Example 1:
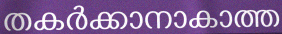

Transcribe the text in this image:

തകർക്കാനാകാത്ത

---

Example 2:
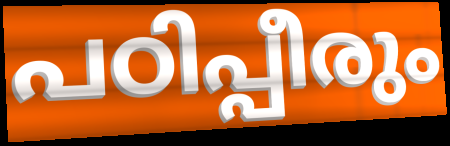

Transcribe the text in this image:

പഠിപ്പീരും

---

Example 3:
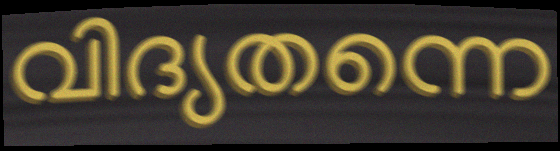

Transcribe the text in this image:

വിദ്യതന്നെ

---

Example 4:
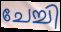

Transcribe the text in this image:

ചേച്ചി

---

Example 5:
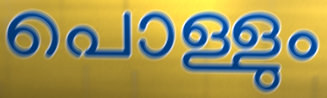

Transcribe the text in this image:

പൊള്ളും